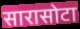
सारासोटा